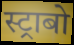
स्ट्राबो